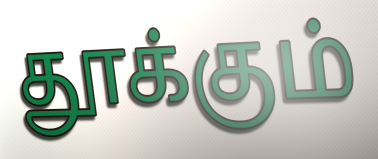
தூக்கும்